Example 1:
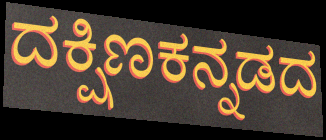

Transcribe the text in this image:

ದಕ್ಷಿಣಕನ್ನಡದ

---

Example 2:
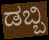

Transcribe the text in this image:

ಡಬ್ಬಿ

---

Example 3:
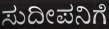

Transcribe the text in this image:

ಸುದೀಪನಿಗೆ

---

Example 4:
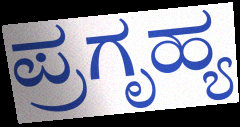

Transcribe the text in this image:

ಪ್ರಗೃಹ್ಯ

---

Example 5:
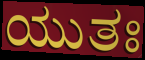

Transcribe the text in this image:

ಯುತಃ